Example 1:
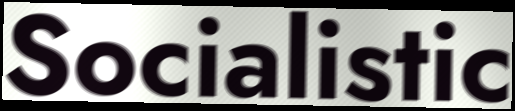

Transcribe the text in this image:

Socialistic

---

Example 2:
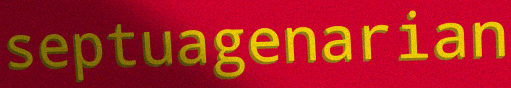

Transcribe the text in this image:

septuagenarian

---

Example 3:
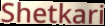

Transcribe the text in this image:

Shetkari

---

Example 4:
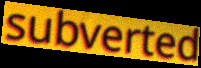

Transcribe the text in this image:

subverted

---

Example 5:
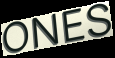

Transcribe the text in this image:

ONES